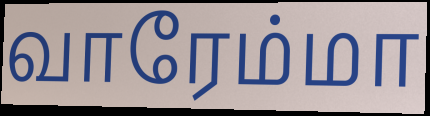
வாரேம்மா